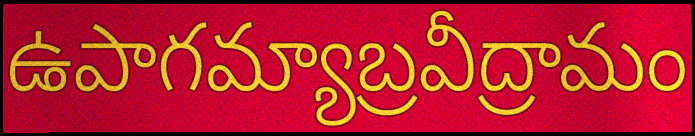
ఉపాగమ్యాబ్రవీద్రామం